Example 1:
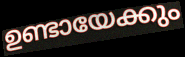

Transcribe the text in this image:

ഉണ്ടായേക്കും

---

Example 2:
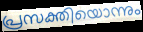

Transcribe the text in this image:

പ്രസക്തിയൊന്നും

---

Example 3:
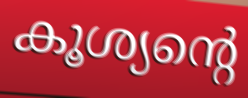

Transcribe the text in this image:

കൂശ്യന്റെ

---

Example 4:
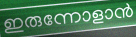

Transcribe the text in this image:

ഇരുന്നോളാൻ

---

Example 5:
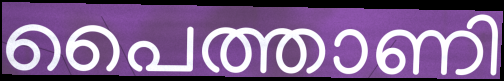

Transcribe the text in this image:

പൈത്താണി